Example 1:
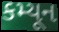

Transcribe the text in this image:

કમ્યૂન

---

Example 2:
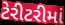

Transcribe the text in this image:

ટેરીટરીમાં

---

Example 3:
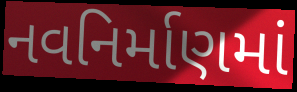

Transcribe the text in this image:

નવનિર્માણમાં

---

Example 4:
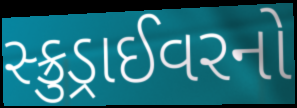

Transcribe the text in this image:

સ્ક્રુડ્રાઈવરનો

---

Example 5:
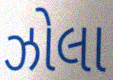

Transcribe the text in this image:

ઝોલા